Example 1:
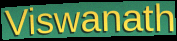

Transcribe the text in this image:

Viswanath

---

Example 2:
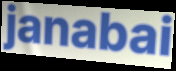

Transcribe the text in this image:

janabai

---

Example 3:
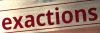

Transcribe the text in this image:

exactions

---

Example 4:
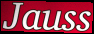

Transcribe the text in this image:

Jauss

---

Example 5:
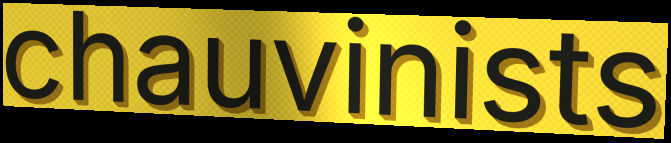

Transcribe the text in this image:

chauvinists